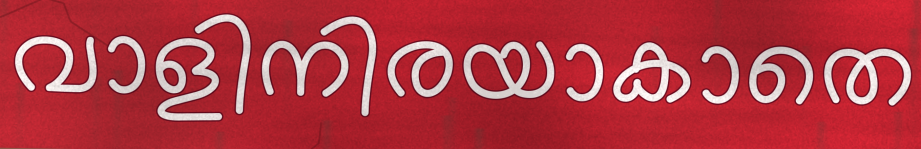
വാളിനിരയാകാതെ